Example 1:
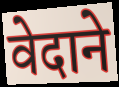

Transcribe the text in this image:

वेदाने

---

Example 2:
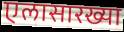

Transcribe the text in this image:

एलासारख्या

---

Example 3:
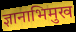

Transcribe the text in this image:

ज्ञानाभिमुख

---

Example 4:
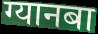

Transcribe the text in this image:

ग्यानबा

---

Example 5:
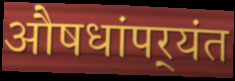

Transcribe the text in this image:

औषधांपर्यंत